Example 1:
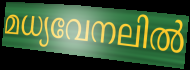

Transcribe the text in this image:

മധ്യവേനലിൽ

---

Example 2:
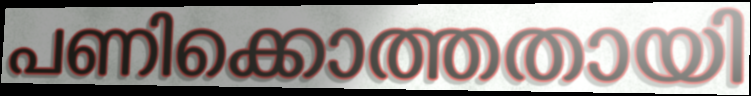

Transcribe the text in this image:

പണിക്കൊത്തതായി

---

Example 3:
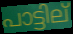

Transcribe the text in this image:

പാട്ടില്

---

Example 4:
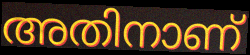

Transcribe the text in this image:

അതിനാണ്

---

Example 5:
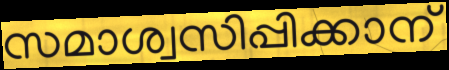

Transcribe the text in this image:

സമാശ്വസിപ്പിക്കാന്